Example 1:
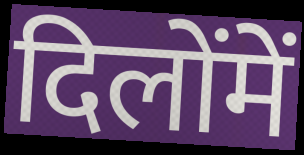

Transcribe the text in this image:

दिलोंमें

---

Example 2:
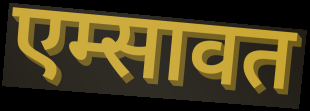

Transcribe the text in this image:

एम्सावत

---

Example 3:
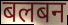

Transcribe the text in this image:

बलबन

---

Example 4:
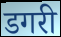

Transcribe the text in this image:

डगरी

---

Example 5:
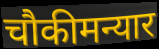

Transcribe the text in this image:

चौकीमन्यार